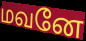
மவனே